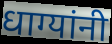
धाग्यांनी